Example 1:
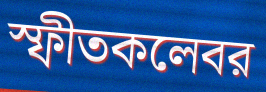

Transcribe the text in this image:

স্ফীতকলেবর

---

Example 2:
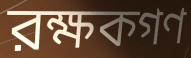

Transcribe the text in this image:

রক্ষকগণ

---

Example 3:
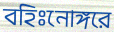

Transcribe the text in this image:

বহিঃনোঙ্গরে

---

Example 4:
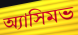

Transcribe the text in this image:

অ্যাসিমভ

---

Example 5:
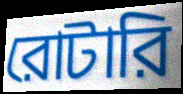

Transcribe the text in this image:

রোটারি